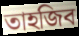
তাহজিব